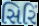
સિરિં